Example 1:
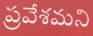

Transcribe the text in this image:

ప్రవేశమని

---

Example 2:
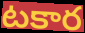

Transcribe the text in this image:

టకార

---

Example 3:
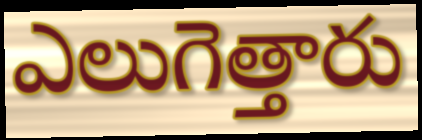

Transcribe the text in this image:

ఎలుగెత్తారు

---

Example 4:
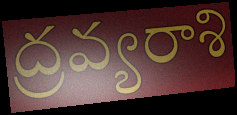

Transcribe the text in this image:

ద్రవ్యరాశి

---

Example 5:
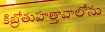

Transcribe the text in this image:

కిబ్రోతుహత్తావాలోను